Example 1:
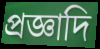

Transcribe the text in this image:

প্রজ্ঞাদি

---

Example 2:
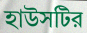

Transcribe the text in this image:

হাউসটির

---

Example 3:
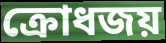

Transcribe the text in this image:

ক্রোধজয়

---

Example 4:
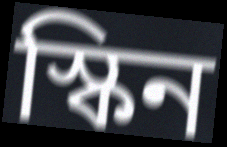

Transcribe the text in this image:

স্কিন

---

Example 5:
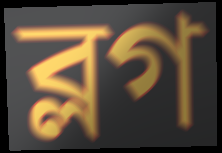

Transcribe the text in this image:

ব্লগ